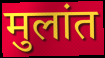
मुलांत